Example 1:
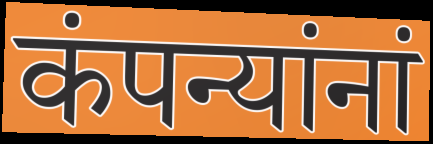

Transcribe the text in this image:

कंपन्यांनां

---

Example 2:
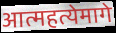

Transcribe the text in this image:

आत्महत्येमागे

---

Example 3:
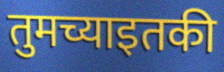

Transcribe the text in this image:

तुमच्याइतकी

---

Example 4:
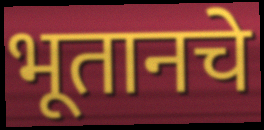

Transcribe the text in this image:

भूतानचे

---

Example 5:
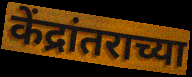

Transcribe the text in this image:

केंद्रांतराच्या